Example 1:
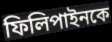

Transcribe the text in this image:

ফিলিপাইনকে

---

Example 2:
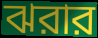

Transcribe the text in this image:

ঝরার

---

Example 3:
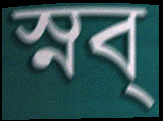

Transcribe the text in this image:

স্নব্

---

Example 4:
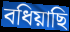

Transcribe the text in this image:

বধিয়াছি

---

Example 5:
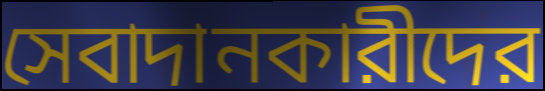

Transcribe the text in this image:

সেবাদানকারীদের